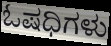
ಓಷಧಿಗಳು